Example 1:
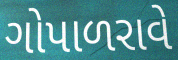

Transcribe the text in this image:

ગોપાળરાવે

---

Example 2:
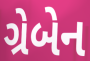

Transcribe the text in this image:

ગ્રેબેન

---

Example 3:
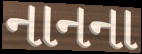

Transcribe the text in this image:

નાનના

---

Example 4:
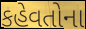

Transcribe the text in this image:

કહેવતોના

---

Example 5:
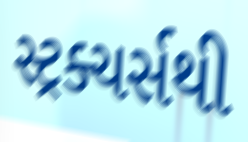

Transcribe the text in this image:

સ્ટ્રક્ચર્સથી